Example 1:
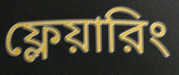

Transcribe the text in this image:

ফ্লেয়ারিং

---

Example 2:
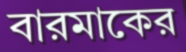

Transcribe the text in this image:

বারমাকের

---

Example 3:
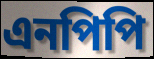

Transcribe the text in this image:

এনপিপি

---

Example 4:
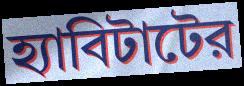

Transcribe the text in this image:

হ্যাবিটাটের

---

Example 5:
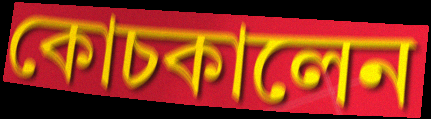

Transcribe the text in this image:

কোচকালেন